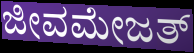
ಜೀವಮೇಜತ್